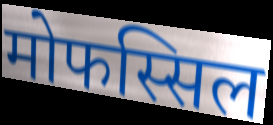
मोफस्सिल